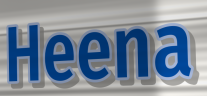
Heena